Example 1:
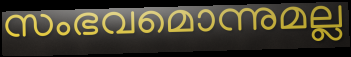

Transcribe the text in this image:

സംഭവമൊന്നുമല്ല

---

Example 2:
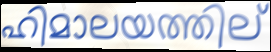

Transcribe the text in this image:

ഹിമാലയത്തില്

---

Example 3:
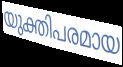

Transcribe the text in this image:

യുക്തിപരമായ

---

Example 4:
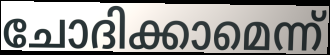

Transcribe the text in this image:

ചോദിക്കാമെന്ന്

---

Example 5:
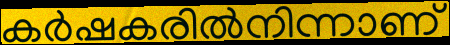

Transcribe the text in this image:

കർഷകരിൽനിന്നാണ്